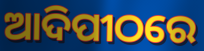
ଆଦିପୀଠରେ